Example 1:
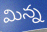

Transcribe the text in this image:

మిన్న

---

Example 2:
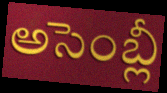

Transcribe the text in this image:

అసెంబ్లీ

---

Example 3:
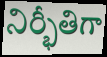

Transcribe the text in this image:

నిర్భీతిగా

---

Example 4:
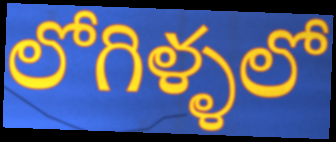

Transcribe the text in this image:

లోగిళ్ళలో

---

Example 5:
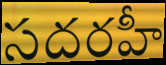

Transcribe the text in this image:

సదరహీ